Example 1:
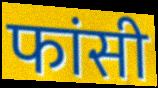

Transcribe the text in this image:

फांसी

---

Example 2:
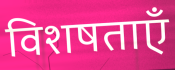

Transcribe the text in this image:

विशषताएँ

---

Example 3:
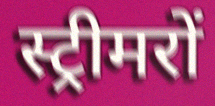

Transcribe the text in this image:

स्ट्रीमरों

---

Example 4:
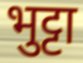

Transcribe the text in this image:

भुट्टा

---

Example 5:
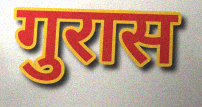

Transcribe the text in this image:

गुरास